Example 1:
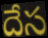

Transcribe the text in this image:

దేస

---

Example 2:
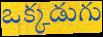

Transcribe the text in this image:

ఒక్కడుగు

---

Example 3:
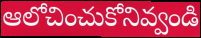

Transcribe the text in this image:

ఆలోచించుకోనివ్వండి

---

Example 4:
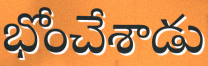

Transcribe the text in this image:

భోంచేశాడు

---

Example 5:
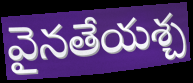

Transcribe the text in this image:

వైనతేయశ్చ